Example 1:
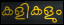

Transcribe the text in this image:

കളികളും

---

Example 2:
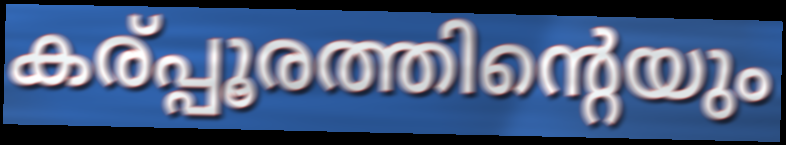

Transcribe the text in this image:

കര്പ്പൂരത്തിന്റെയും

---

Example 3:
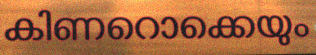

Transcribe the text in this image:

കിണറൊക്കെയും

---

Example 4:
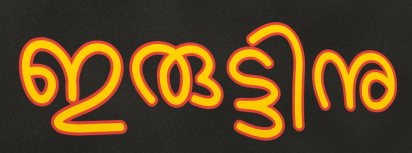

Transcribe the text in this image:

ഇരുട്ടിനു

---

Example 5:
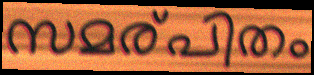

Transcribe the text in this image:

സമര്പിതം